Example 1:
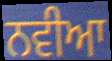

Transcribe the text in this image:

ਨਵੀਆ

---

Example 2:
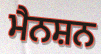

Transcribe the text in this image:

ਮੈਨਸ਼ਨ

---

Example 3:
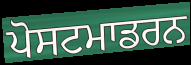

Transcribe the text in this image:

ਪੋਸਟਮਾਡਰਨ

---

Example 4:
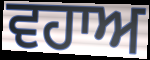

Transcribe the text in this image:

ਵਹਾਅ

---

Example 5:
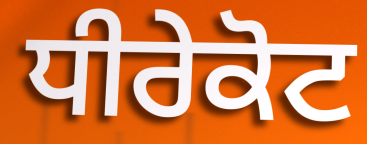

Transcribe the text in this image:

ਧੀਰੇਕੋਟ